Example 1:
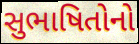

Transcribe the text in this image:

સુભાષિતોનો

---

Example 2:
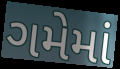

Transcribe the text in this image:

ગમેમાં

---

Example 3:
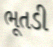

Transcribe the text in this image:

ભૂતડી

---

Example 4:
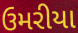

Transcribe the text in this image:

ઉમરીયા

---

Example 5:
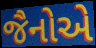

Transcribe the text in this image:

જૈનોએ